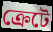
ক্রেটে